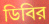
ডিবির